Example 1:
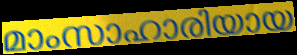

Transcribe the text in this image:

മാംസാഹാരിയായ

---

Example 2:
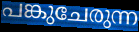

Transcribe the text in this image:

പങ്കുചേരുന്ന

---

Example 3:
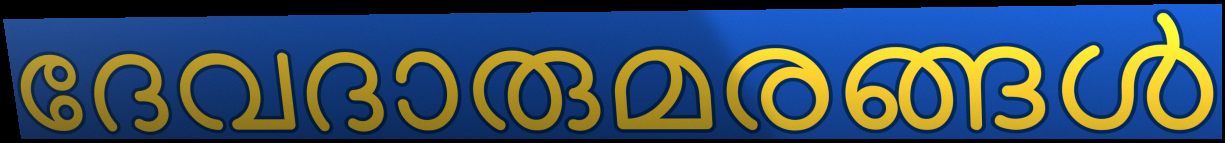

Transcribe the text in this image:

ദേവദാരുമരങ്ങൾ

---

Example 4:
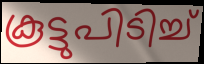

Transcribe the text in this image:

കൂട്ടുപിടിച്ച്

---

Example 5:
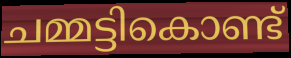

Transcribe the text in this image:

ചമ്മട്ടികൊണ്ട്